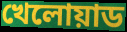
খেলোয়াড